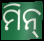
ମିନ୍